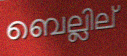
ബെല്ലില്